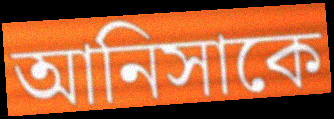
আনিসাকে